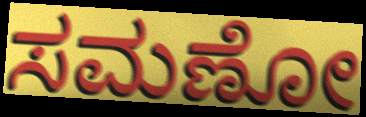
ಸಮಣೋ